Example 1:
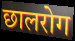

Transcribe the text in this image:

छालरोग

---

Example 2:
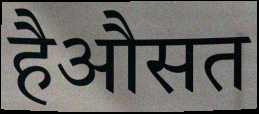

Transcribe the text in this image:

हैऔसत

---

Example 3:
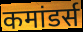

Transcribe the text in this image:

कमांडर्स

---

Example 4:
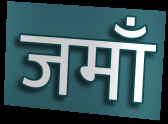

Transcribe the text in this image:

जमाँ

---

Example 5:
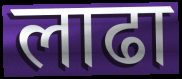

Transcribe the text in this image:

लाढा